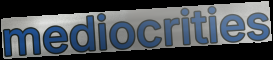
mediocrities